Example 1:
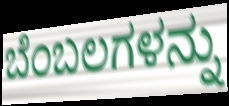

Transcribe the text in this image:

ಬೆಂಬಲಗಳನ್ನು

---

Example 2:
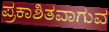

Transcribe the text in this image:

ಪ್ರಕಾಶಿತವಾಗುವ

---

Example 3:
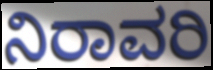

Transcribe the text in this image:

ನಿರಾವರಿ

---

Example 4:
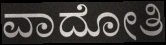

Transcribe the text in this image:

ವಾದೋತಿ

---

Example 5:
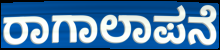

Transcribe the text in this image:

ರಾಗಾಲಾಪನೆ